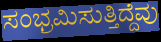
ಸಂಭ್ರಮಿಸುತ್ತಿದ್ದೆವು